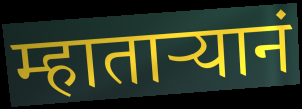
म्हाताऱ्यानं